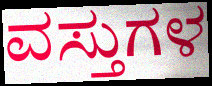
ವಸ್ತುಗಳ